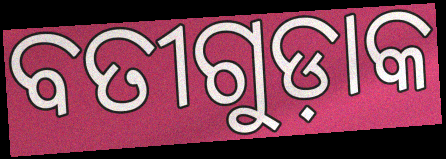
ବତୀଗୁଡ଼ାକ